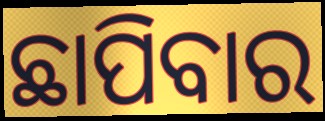
ଛାପିବାର